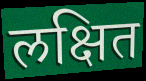
लक्षित